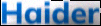
Haider